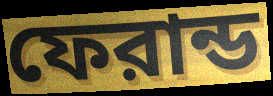
ফেরান্ড